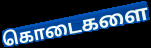
கொடைகளை